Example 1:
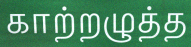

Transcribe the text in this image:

காற்றழுத்த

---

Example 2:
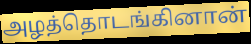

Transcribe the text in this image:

அழத்தொடங்கினான்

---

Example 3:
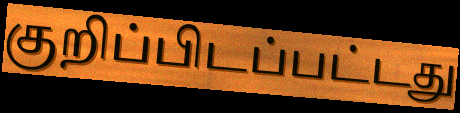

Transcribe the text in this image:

குறிப்பிடப்பட்டது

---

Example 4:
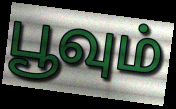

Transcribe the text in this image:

பூவும்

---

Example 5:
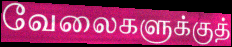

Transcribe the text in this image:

வேலைகளுக்குத்